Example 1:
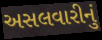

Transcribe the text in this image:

અસલવારીનું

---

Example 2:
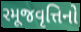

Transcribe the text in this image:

રમૂજવૃત્તિનો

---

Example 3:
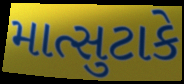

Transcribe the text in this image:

માત્સુટાકે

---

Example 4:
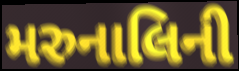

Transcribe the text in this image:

મરુનાલિની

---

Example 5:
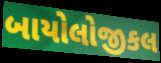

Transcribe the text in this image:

બાયોલોજીકલ